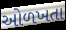
ઓળખતા